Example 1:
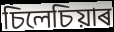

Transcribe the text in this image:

চিলেচিয়াৰ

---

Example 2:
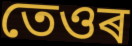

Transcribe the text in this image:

তেওৰ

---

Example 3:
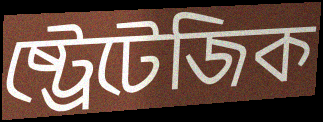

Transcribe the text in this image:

ষ্ট্ৰেটেজিক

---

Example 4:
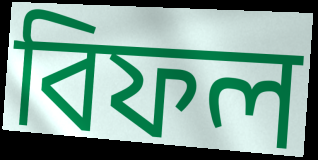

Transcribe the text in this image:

বিফল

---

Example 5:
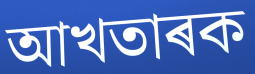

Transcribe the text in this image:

আখতাৰক